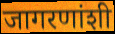
जागरणांशी